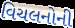
વિચલનોની